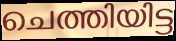
ചെത്തിയിട്ട